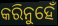
କରିନୁହେଁ